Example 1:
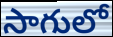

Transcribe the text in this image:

సాగులో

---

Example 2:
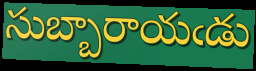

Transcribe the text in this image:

సుబ్బారాయఁడు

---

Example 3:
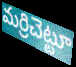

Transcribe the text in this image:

మర్రిచెట్టూ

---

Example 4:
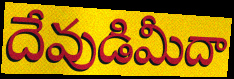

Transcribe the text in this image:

దేవుడిమీదా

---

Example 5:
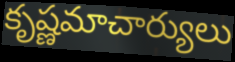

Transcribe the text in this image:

కృష్ణమాచార్యులు